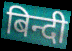
बिन्दी